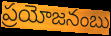
ప్రయోజనంబు